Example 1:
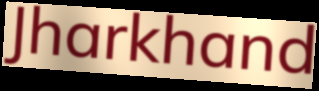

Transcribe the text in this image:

Jharkhand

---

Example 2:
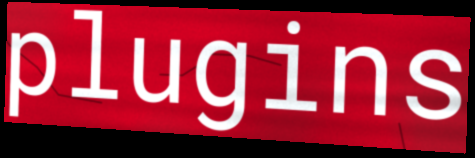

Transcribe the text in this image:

plugins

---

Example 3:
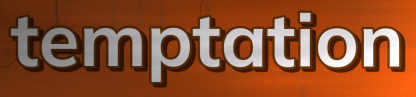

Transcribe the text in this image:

temptation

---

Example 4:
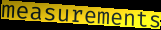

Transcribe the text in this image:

measurements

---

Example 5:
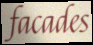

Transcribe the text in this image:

facades